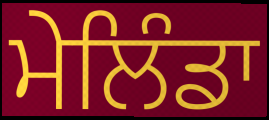
ਮੇਲਿੰਡਾ